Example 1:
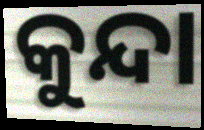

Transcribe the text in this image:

କୁନ୍ଦା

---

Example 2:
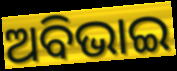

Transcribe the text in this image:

ଅବିଭାଇ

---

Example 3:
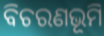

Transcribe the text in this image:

ବିଚରଣଭୂମି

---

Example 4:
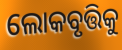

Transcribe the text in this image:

ଲୋକବୃତ୍ତିକୁ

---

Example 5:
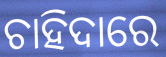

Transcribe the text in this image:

ଚାହିଦାରେ